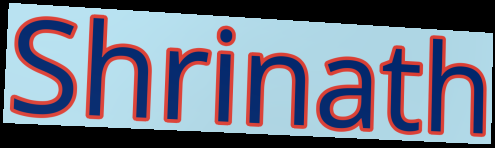
Shrinath